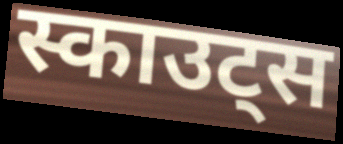
स्काउट्स